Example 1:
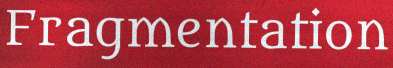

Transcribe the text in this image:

Fragmentation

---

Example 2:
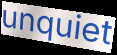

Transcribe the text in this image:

unquiet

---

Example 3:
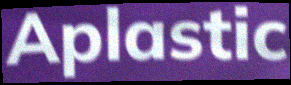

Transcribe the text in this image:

Aplastic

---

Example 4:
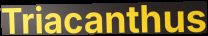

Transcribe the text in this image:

Triacanthus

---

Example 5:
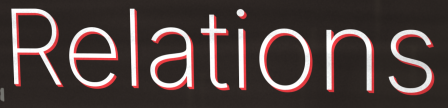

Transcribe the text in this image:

Relations